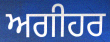
ਅਗੀਹਰ